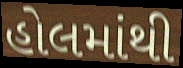
હોલમાંથી